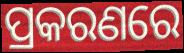
ପ୍ରକରଣରେ